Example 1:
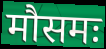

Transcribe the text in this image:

मौसमः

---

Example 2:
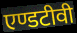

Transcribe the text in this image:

एण्डटीवी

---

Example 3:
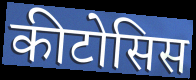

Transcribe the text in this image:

कीटोसिस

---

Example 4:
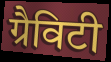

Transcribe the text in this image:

ग्रैविटी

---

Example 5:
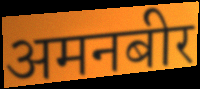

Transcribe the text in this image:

अमनबीर